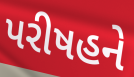
પરીષહને